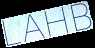
LAHB